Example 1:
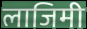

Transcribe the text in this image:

लाजिमी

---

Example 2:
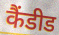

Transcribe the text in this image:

कैंडीड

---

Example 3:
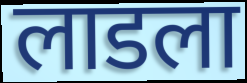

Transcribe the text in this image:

लाडला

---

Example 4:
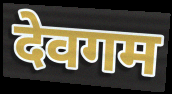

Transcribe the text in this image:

देवगम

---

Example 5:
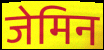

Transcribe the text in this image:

जेमिन